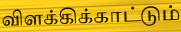
விளக்கிக்காட்டும்